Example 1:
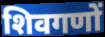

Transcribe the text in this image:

शिवगणों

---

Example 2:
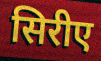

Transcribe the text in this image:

सिरीए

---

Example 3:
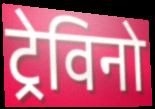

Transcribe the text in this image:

ट्रेविनो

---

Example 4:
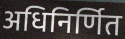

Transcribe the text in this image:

अधिनिर्णित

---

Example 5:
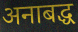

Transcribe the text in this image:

अनाबद्ध